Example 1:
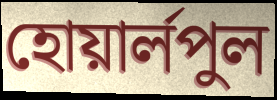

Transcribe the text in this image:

হোয়ার্লপুল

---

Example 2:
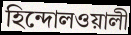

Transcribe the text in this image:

হিন্দোলওয়ালী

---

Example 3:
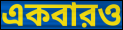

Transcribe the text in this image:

একবারও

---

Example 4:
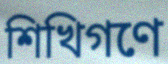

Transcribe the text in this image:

শিখিগণে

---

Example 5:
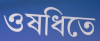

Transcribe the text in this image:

ওষধিতে